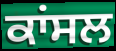
ਕਾਂਸਲ